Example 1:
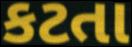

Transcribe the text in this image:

કટતા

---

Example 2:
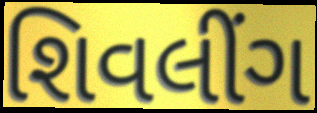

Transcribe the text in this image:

શિવલીંગ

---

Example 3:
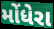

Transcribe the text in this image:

મોંધેરા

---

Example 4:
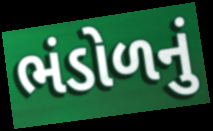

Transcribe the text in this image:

ભંડોળનું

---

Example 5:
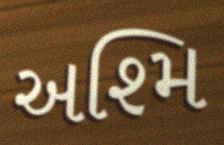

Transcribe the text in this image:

અશ્મિ